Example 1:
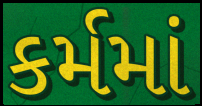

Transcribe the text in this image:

કર્મમાં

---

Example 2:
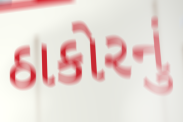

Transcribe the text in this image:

ઠાકોરનું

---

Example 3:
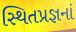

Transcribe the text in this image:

સ્થિતપ્રજ્ઞનાં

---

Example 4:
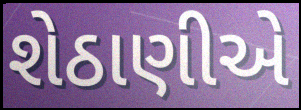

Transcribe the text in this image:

શેઠાણીએ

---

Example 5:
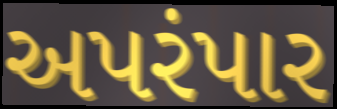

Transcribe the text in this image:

અપરંપાર